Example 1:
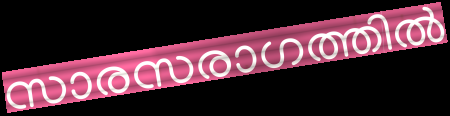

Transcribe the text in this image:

സാരസരാഗത്തിൽ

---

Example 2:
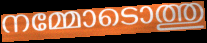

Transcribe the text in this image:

നമ്മോടൊത്തു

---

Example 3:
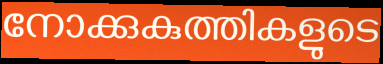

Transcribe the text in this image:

നോക്കുകുത്തികളുടെ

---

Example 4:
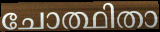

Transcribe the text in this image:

ചോത്ഥിതാ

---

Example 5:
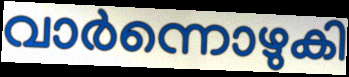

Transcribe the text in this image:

വാർന്നൊഴുകി